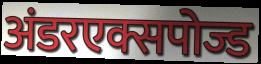
अंडरएक्सपोज्ड